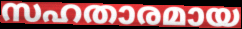
സഹതാരമായ